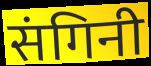
संगिनी